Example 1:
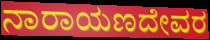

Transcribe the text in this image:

ನಾರಾಯಣದೇವರ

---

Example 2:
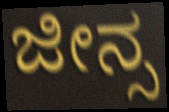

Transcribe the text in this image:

ಜೀನ್ಸ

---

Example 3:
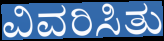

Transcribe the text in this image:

ವಿವರಿಸಿತು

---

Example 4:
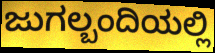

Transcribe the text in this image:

ಜುಗಲ್ಬಂದಿಯಲ್ಲಿ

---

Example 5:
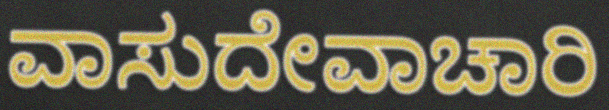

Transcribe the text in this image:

ವಾಸುದೇವಾಚಾರಿ